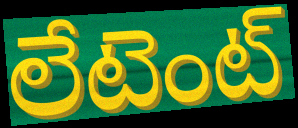
లేటెంట్